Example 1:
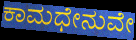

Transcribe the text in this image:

ಕಾಮಧೇನುವೇ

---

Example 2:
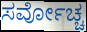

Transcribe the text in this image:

ಸರ್ವೋಚ್ಚ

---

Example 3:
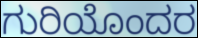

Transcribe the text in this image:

ಗುರಿಯೊಂದರ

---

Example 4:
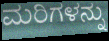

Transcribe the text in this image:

ಮರಿಗಳನ್ನು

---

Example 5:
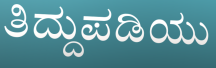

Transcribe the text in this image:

ತಿದ್ದುಪಡಿಯು